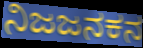
ನಿಜಜನಕನ